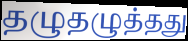
தழுதழுத்தது